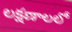
లక్షణాలలో